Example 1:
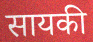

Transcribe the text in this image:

सायकी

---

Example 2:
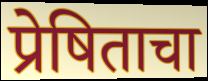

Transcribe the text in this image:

प्रेषिताचा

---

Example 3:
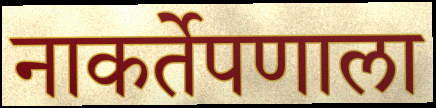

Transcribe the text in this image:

नाकर्तेपणाला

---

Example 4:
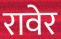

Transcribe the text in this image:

रावेर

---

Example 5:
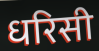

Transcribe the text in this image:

धरिसी